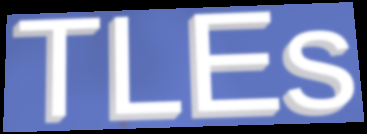
TLEs